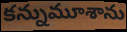
కన్నుమూశాను